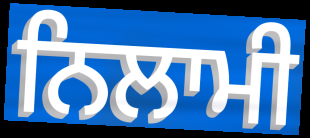
ਨਿਲਾਮੀ